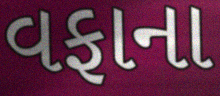
વફાના